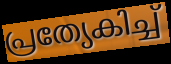
പ്രത്യേകിച്ച്